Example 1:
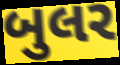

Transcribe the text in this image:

બુલર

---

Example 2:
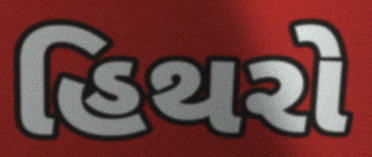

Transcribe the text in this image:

હિથરો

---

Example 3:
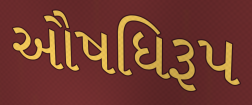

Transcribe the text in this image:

ઔષધિરૂપ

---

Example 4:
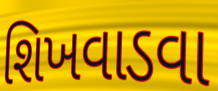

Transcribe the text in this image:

શિખવાડવા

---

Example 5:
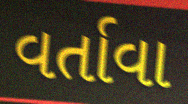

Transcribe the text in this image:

વર્તાવા